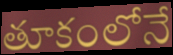
తూకంలోనే